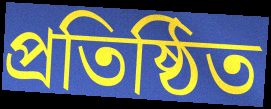
প্ৰতিষ্ঠিত